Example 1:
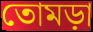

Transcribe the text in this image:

তোমড়া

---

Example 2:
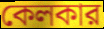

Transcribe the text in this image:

কেলকার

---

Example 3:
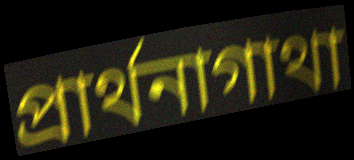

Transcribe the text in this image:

প্রার্থনাগাথা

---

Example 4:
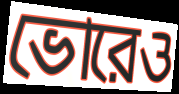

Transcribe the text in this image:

ভোরেও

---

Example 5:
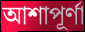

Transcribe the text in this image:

আশাপূর্ণা